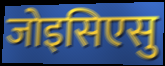
जोइसिएसु